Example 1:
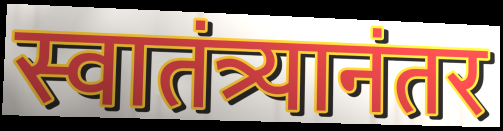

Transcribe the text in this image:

स्वातंत्र्यानंतर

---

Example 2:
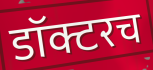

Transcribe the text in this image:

डॉक्टरच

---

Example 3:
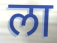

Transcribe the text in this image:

ला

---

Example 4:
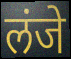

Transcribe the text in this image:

लंजे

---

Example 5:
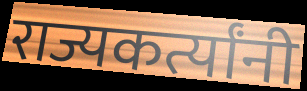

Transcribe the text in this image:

राज्यकर्त्यांनी